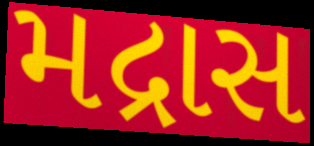
મદ્રાસ